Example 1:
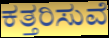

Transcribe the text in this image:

ಕತ್ತರಿಸುವೆ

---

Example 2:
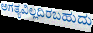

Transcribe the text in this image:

ಅಗತ್ಯವಿಲ್ಲದಿರಬಹುದು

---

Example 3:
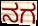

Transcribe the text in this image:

ನಗ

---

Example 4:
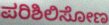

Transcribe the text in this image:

ಪರಿಶಿಲಿಸೋಣ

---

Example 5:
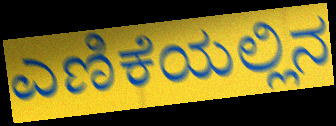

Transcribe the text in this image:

ಎಣಿಕೆಯಲ್ಲಿನ